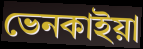
ভেনকাইয়া